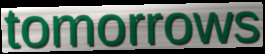
tomorrows